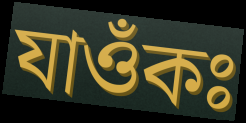
যাওঁকঃ